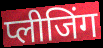
प्लीजिंग